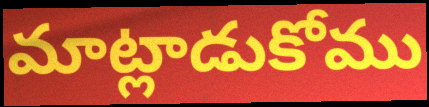
మాట్లాడుకోము